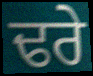
ਢਰੇ